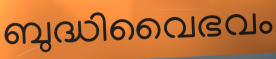
ബുദ്ധിവൈഭവം